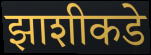
झाशीकडे